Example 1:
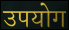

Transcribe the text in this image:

उपयोग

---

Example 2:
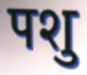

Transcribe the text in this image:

पशु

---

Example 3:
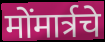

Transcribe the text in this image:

मोंमार्त्रचे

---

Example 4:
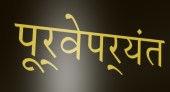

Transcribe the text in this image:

पूर्वेपर्यंत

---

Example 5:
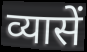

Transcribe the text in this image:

व्यासें